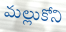
మల్లుకోని